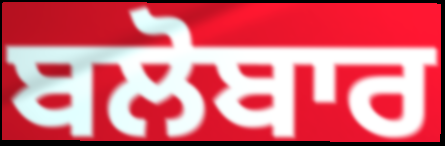
ਬਲੋਬਾਰ